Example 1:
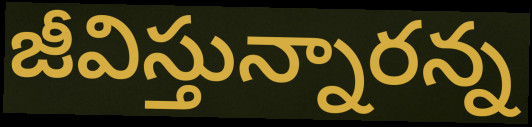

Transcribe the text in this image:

జీవిస్తున్నారన్న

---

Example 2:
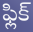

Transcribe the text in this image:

ఫ్లిక్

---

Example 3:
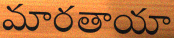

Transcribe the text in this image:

మారతాయా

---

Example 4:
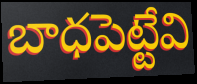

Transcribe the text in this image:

బాధపెట్టేవి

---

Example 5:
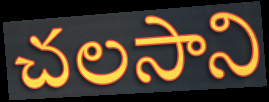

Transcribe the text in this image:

చలసాని